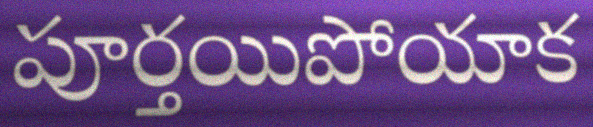
పూర్తయిపోయాక